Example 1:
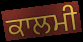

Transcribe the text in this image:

ਕਾਲਮੀ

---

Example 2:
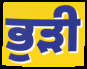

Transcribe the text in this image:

ਭੁੜੀ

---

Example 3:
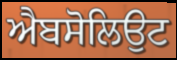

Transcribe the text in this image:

ਐਬਸੋਲਿਉਟ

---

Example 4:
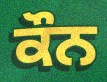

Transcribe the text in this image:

ਕੌਨ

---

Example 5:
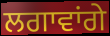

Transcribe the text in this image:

ਲਗਾਵਾਂਗੇ